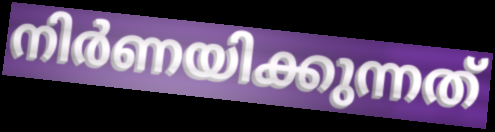
നിർണയിക്കുന്നത്